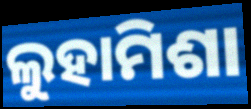
ଲୁହାମିଶା